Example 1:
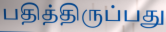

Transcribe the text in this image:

பதித்திருப்பது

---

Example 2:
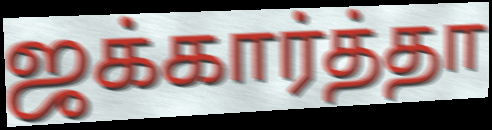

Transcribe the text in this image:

ஜக்கார்த்தா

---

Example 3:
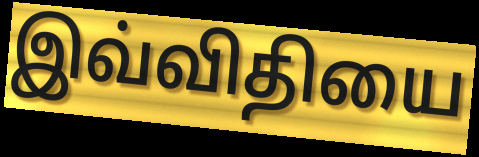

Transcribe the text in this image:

இவ்விதியை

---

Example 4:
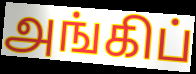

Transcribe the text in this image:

அங்கிப்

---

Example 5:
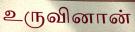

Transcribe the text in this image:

உருவினான்